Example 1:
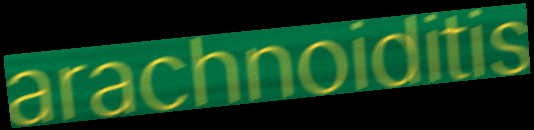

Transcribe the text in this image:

arachnoiditis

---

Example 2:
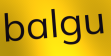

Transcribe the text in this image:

balgu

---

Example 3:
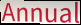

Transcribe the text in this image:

Annual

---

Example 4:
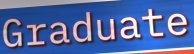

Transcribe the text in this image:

Graduate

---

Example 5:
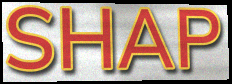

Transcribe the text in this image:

SHAP